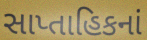
સાપ્તાહિકનાં